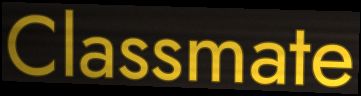
Classmate